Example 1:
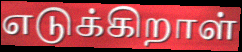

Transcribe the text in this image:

எடுக்கிறாள்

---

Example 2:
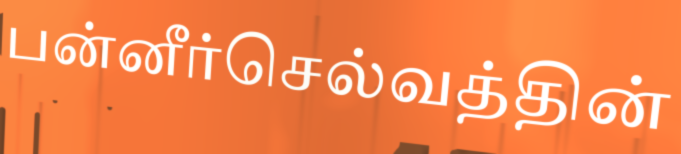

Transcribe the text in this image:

பன்னீர்செல்வத்தின்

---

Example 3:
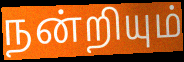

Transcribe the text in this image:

நன்றியும்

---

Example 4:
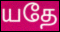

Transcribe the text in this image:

யதே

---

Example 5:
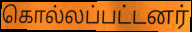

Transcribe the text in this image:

கொல்லப்பட்டனர்